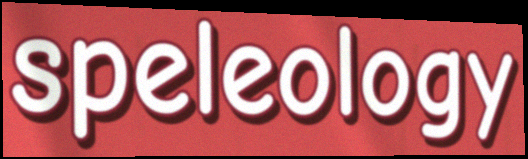
speleology